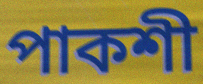
পাকশী